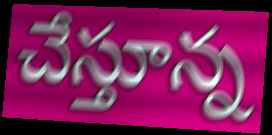
చేస్తూన్న